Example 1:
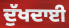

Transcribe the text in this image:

ਦੁੱਖਦਾਈ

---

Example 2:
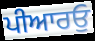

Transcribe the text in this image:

ਪੀਆਰਓੁ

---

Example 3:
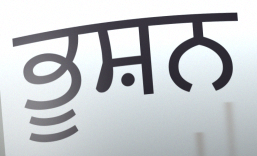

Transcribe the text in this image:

ਭੂਸ਼ਨ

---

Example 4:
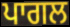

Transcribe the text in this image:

ਪਾਗਲ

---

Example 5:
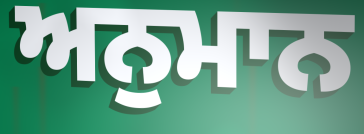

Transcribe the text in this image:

ਅਨੁਮਾਨ